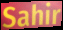
Sahir